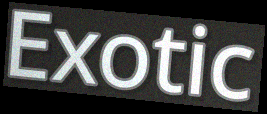
Exotic